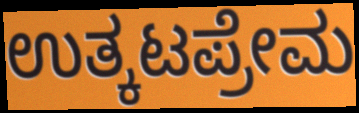
ಉತ್ಕಟಪ್ರೇಮ